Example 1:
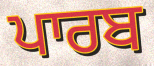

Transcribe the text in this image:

ਪਾਰਬ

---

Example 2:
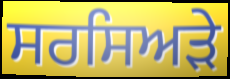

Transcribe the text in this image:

ਸਰਸਿਅੜੇ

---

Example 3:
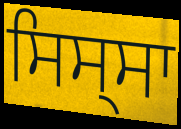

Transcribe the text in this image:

ਸਿਸ੍ਸਾ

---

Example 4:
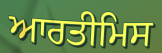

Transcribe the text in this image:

ਆਰਤੀਮਿਸ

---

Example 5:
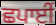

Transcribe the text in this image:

ਛਪਾਈਂ